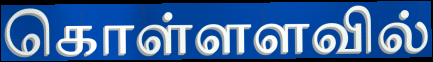
கொள்ளளவில்